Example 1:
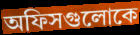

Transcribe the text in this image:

অফিসগুলোকে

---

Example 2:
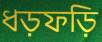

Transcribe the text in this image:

ধড়ফড়ি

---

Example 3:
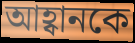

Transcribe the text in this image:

আহ্বানকে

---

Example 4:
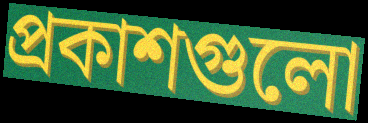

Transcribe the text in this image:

প্রকাশগুলো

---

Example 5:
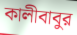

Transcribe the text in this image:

কালীবাবুর